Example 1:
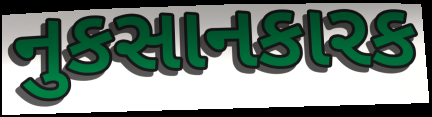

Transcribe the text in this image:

નુકસાનકારક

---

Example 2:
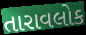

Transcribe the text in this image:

તારાવલોક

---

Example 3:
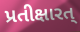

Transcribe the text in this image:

પ્રતીક્ષારત્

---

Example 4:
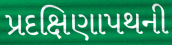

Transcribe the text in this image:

પ્રદક્ષિણાપથની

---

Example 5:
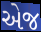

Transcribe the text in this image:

એજ